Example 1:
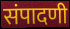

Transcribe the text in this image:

संपादणी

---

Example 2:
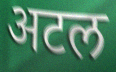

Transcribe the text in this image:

अटल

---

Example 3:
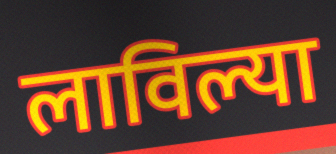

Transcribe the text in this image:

लाविल्या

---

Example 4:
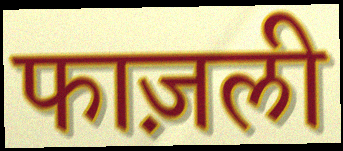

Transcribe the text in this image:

फाज़ली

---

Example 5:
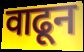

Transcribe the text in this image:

वाढून